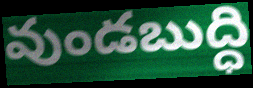
వుండబుద్ధి